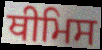
ਥੀਮਿਸ